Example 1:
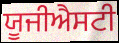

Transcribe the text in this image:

ਯੂਜੀਐਸਟੀ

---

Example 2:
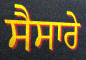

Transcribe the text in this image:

ਸੈਸਾਰੇ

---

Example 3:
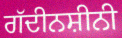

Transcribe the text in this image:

ਗੱਦੀਨਸ਼ੀਨੀ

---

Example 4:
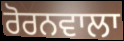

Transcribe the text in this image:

ਰੋਰਨਵਾਲਾ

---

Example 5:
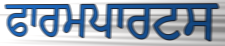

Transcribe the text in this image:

ਫਾਰਮਪਾਰਟਸ